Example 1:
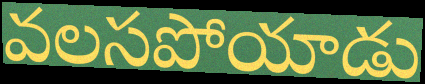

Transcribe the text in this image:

వలసపోయాడు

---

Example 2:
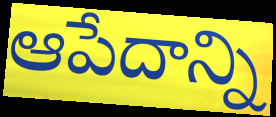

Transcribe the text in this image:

ఆపేదాన్ని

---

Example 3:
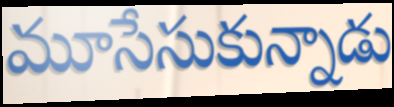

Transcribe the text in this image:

మూసేసుకున్నాడు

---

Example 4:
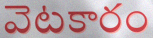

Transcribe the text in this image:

వెటకారం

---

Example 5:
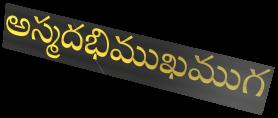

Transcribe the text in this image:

అస్మదభిముఖముగ